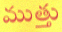
ముత్తు